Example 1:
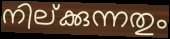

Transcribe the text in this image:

നില്ക്കുന്നതും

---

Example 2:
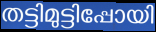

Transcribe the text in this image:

തട്ടിമുട്ടിപ്പോയി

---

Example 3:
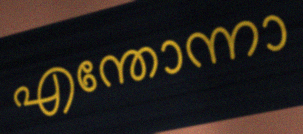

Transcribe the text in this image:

എന്തോന്നാ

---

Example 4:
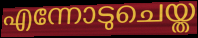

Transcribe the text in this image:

എന്നോടുചെയ്ത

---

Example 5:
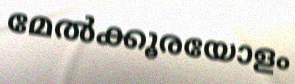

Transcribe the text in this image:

മേൽക്കൂരയോളം